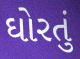
ઘોરતું